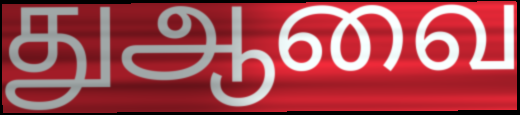
துஆவை